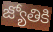
జ్యోతికి